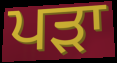
ਪੜਾ